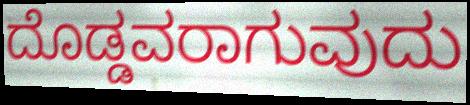
ದೊಡ್ಡವರಾಗುವುದು